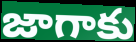
జాగాకు